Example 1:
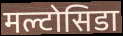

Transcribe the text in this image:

मल्टोसिडा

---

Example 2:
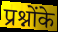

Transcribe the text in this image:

प्रश्नोंके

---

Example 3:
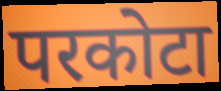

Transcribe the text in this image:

परकोटा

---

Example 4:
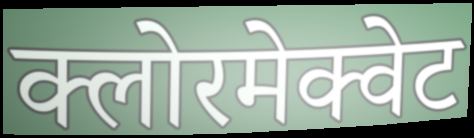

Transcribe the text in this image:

क्लोरमेक्वेट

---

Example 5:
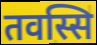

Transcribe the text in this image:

तवस्सि